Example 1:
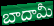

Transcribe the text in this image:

బాదామీ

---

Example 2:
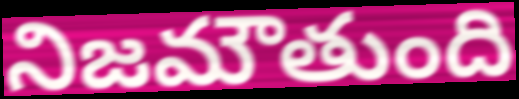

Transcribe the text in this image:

నిజమౌతుంది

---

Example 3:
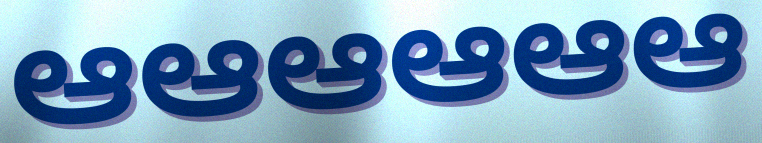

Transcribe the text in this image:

ఆఆఆఆఆఆ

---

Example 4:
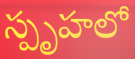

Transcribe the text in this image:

స్పృహలో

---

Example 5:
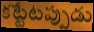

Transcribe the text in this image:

కట్టేటప్పుడు